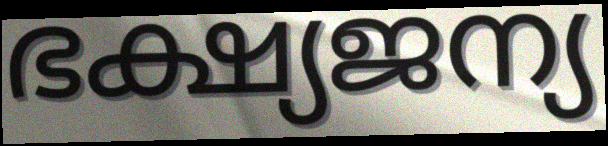
ഭക്ഷ്യജന്യ